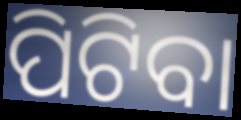
ପିଟିବା